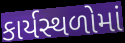
કાર્યસ્થળોમાં